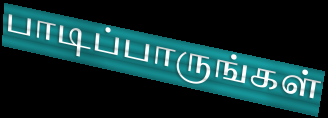
பாடிப்பாருங்கள்